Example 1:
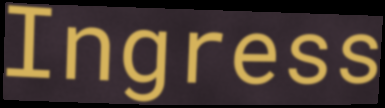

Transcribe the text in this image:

Ingress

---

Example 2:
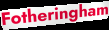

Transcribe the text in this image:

Fotheringham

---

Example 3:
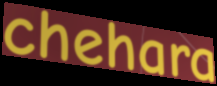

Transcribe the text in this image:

chehara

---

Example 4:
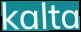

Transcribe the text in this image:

kalta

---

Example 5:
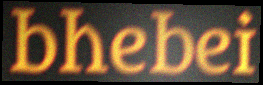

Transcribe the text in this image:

bhebei